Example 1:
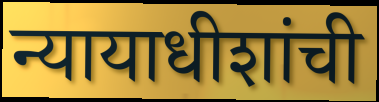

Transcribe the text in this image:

न्यायाधीशांची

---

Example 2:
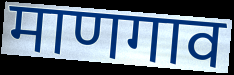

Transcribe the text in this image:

माणगाव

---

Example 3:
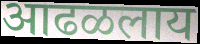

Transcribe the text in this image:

आढळलाय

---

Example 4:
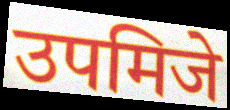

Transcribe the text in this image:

उपमिजे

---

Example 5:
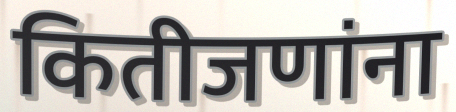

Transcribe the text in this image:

कितीजणांना